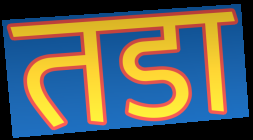
तडा